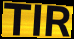
TIR